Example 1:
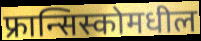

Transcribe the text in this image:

फ्रान्सिस्कोमधील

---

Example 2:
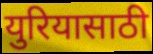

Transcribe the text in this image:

युरियासाठी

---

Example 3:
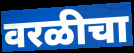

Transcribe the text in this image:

वरळीचा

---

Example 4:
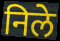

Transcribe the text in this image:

निले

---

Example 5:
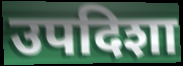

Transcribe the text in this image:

उपदिशा